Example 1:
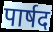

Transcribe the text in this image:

पार्षद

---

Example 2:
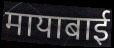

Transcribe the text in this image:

मायाबाई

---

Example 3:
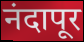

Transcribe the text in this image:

नंदापूर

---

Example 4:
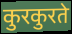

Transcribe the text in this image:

कुरकुरते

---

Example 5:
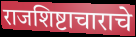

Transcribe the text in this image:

राजशिष्टाचाराचे